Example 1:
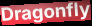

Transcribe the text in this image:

Dragonfly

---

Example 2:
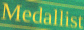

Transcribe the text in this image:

Medallist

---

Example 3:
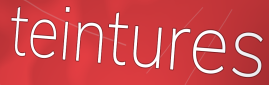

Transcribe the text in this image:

teintures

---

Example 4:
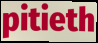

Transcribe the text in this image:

pitieth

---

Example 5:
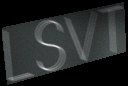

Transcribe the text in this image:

LSVT